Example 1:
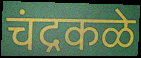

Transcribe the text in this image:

चंद्रकळे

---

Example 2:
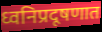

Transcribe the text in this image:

ध्वनिप्रदूषणात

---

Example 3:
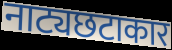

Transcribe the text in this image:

नाट्यछटाकार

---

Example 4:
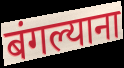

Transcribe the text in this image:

बंगल्याना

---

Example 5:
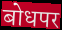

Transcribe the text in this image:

बोधपर